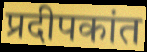
प्रदीपकांत